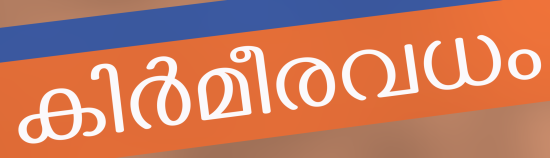
കിർമീരവധം